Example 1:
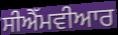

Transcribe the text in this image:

ਸੀਐੱਮਵੀਆਰ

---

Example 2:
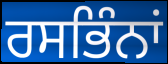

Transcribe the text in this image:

ਰਸਭਿੰਨਾਂ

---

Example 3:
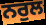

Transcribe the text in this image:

ਨਰੁਲ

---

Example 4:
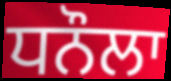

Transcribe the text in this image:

ਧਨੌਲਾ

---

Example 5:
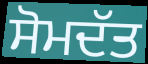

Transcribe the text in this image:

ਸੋਮਦੱਤ